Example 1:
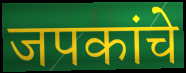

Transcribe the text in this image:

जपकांचे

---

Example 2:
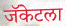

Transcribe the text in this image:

जॅकेटला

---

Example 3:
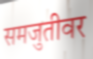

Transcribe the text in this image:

समजुतीवर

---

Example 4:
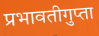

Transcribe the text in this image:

प्रभावतीगुप्ता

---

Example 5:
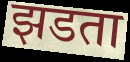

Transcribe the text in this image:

झडता